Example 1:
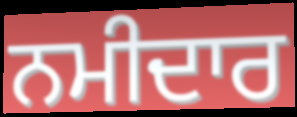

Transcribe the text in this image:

ਨਮੀਦਾਰ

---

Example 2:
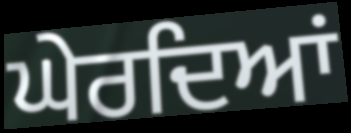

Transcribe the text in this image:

ਘੇਰਦਿਆਂ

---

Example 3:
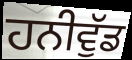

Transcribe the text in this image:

ਹਨੀਵੁੱਡ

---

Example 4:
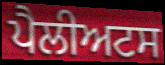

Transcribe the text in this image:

ਪੈਲੀਅਟਸ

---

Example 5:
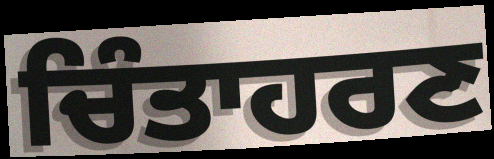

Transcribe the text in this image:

ਚਿੰਤਾਹਰਣ